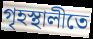
গৃহস্থালীতে